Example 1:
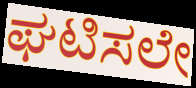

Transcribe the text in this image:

ಘಟಿಸಲೇ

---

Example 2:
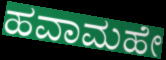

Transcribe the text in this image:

ಹವಾಮಹೇ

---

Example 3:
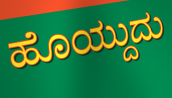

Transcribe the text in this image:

ಹೊಯ್ದುದು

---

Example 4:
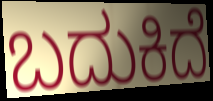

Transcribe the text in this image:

ಬದುಕಿದೆ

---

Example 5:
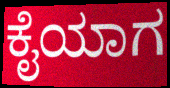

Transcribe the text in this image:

ಕೈಯಾಗ